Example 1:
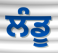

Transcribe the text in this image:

ਲੰਡੂ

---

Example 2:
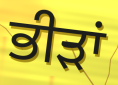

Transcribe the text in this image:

ਭੀੜਾਂ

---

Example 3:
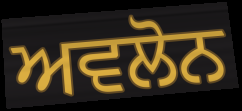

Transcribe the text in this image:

ਅਵਲੋਨ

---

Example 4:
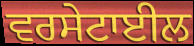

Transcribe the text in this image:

ਵਰਸੇਟਾਈਲ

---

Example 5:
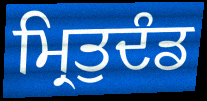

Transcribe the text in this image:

ਮ੍ਰਿਤੁਦੰਡ